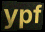
ypf